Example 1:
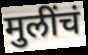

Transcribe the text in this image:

मुलींचं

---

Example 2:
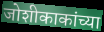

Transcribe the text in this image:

जोशीकाकांच्या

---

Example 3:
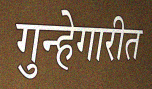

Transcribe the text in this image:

गुन्हेगारीत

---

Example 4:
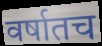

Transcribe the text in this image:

वर्षातच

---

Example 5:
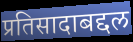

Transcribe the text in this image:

प्रतिसादाबद्दल